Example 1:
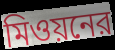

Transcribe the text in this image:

মিওয়নের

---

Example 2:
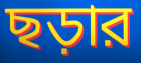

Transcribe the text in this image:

ছড়ার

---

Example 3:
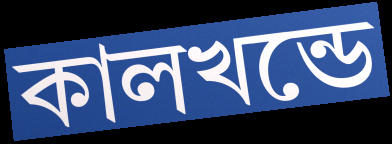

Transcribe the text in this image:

কালখন্ডে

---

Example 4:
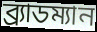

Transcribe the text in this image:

ব্র্যাডম্যান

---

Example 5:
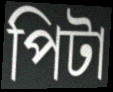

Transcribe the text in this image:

পিটা